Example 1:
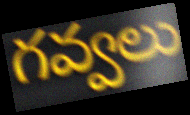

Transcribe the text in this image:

గవ్వలు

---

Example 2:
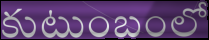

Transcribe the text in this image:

కుటుంబంలో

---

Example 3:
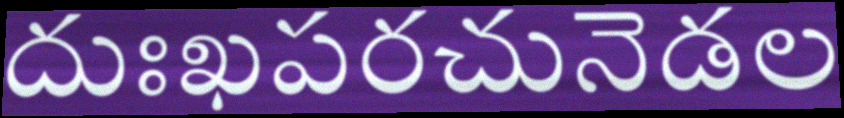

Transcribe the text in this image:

దుఃఖపరచునెడల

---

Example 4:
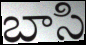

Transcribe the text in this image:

బాసి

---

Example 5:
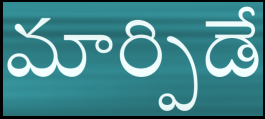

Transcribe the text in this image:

మార్పిడే